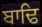
ਬਾਢਿ